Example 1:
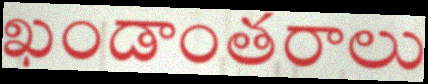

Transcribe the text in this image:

ఖండాంతరాలు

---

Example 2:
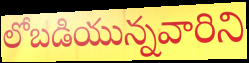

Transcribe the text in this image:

లోబడియున్నవారిని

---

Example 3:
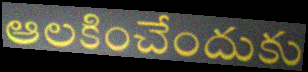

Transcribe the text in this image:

ఆలకించేందుకు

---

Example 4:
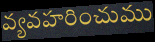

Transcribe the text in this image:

వ్యవహరించుము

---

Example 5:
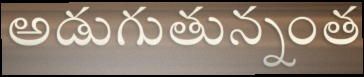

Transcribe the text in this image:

అడుగుతున్నంత